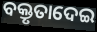
ବକ୍ତୃତାଦେଇ